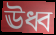
ঊধ্ব